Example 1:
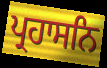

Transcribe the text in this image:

ਪ੍ਰਹਾਸਨਿ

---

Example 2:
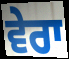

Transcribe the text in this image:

ਵੇਰਾ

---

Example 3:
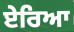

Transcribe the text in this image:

ਏਰਿਆ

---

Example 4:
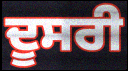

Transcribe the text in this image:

ਦੂਸਰੀ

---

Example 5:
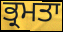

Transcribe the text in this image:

ਭ੍ਰਮਤਾ